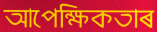
আপেক্ষিকতাৰ